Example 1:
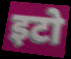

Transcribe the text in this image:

इटो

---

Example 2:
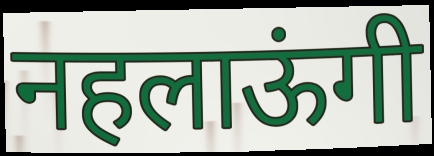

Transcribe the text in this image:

नहलाऊंगी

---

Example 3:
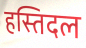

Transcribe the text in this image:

हस्तिदल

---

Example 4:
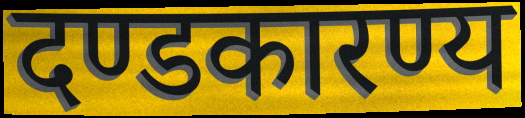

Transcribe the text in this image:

दण्डकारण्य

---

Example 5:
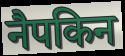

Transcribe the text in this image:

नैपकिन